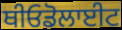
ਥੀਓਡੋਲਾਈਟ